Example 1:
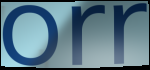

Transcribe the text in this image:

orr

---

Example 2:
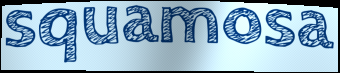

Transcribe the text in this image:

squamosa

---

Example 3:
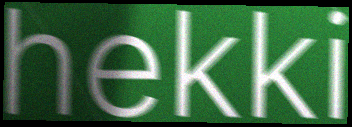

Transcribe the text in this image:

hekki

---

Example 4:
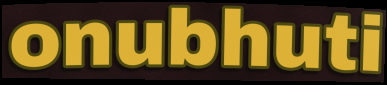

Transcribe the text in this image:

onubhuti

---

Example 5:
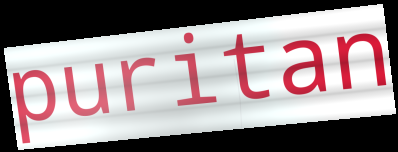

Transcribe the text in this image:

puritan